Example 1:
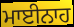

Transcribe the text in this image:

ਮਾਈਨਾਹ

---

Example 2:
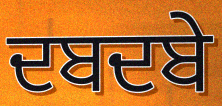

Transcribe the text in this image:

ਦਬਦਬੇ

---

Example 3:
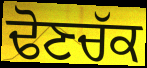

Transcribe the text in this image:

ਢੋਣਚੱਕ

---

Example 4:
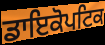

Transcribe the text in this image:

ਡਾਇਕੋਪਟਿਕ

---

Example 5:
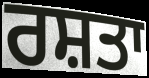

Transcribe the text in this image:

ਰਸ਼ਤਾ